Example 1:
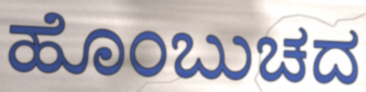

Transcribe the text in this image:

ಹೊಂಬುಚದ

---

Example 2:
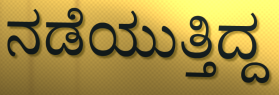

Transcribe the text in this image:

ನಡೆಯುತ್ತಿದ್ದ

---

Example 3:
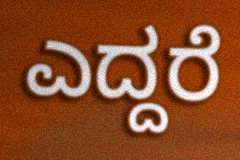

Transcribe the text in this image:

ಎದ್ದರೆ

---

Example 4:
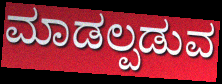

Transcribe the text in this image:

ಮಾಡಲ್ಪಡುವ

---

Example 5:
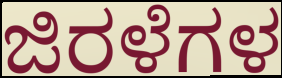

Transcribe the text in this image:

ಜಿರಳೆಗಳ